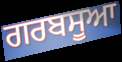
ਗਰਬਸੂਆ